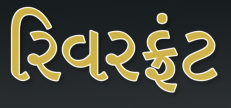
રિવરફ્રંટ